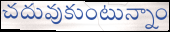
చదువుకుంటున్నాం